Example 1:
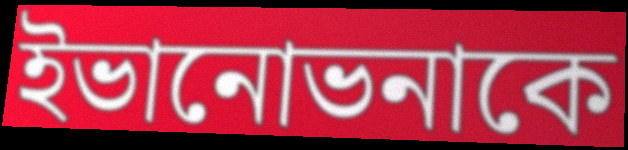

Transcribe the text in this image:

ইভানোভনাকে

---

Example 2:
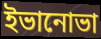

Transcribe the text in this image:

ইভানোভা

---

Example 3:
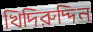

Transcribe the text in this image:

খিদিরুদ্দিন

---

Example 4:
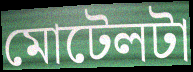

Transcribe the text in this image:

মোটেলটা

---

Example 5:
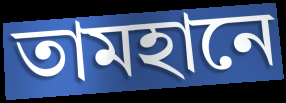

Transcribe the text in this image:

তামহানে